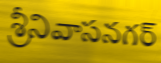
శ్రీనివాసనగర్